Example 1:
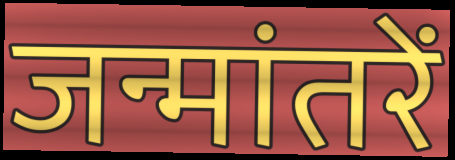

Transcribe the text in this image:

जन्मांतरें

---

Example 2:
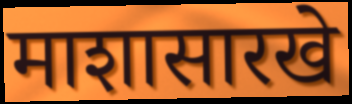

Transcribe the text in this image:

माशासारखे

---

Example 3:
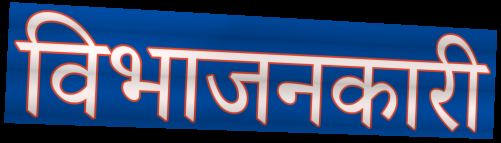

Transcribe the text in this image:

विभाजनकारी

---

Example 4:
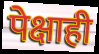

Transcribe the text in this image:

पेक्षाही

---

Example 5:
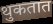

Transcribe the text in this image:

थुकतात